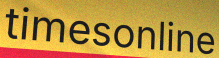
timesonline